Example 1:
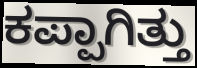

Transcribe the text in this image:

ಕಪ್ಪಾಗಿತ್ತು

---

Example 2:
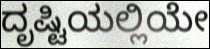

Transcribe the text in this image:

ದೃಷ್ಟಿಯಲ್ಲಿಯೇ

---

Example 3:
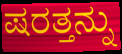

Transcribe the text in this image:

ಷರತ್ತನ್ನು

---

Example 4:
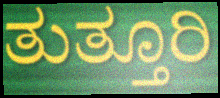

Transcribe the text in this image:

ತುತ್ತೂರಿ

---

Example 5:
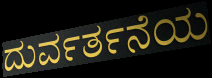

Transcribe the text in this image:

ದುರ್ವರ್ತನೆಯ